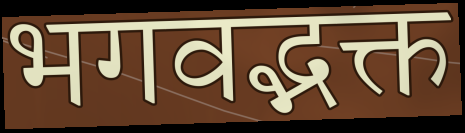
भगवद्भक्त